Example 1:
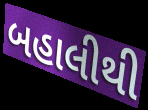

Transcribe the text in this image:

બહાલીથી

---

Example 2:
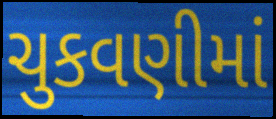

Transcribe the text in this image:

ચુકવણીમાં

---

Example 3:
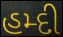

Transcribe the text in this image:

હમ્દી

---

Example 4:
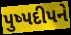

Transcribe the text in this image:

પુષ્પદીપને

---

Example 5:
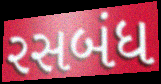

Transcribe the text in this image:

રસબંધ